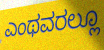
ಎಂಥವರಲ್ಲೂ